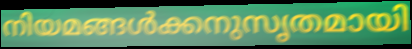
നിയമങ്ങൾക്കനുസൃതമായി